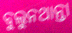
ବୁଲୁନଥାନ୍ତା